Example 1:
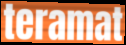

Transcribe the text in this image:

teramat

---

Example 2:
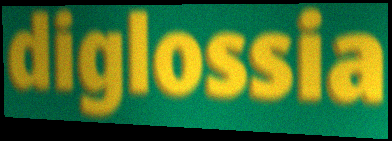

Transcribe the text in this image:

diglossia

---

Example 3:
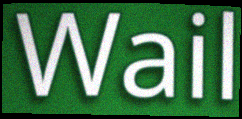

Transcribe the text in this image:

Wail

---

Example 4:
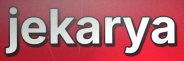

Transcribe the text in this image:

jekarya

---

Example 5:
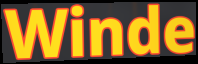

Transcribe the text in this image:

Winde